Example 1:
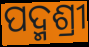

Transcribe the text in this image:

ପଦ୍ମଶ୍ରୀ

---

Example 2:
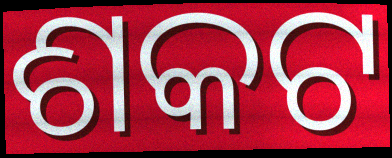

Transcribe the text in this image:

ଶକଟ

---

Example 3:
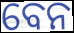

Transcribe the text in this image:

ବେନ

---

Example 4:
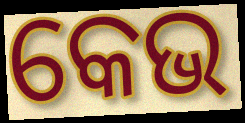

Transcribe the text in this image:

କେଭ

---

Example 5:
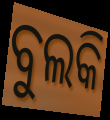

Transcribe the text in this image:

ବୁଲକି